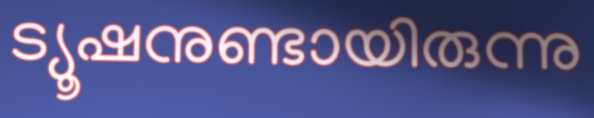
ട്യൂഷനുണ്ടായിരുന്നു